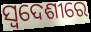
ସ୍ୱଦେଶୀରେ